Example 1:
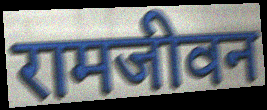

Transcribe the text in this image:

रामजीवन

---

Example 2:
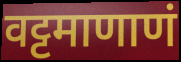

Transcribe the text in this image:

वट्टमाणाणं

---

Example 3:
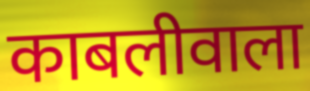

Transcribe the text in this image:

काबलीवाला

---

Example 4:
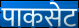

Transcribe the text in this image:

पाकसेट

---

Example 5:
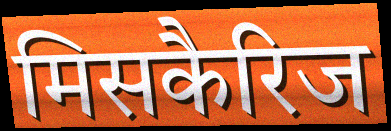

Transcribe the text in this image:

मिसकैरिज